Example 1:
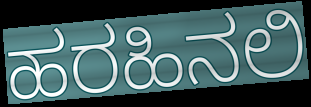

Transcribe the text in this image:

ಹರಹಿನಲಿ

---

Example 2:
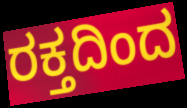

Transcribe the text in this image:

ರಕ್ತದಿಂದ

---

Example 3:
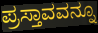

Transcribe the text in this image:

ಪ್ರಸ್ತಾವವನ್ನೂ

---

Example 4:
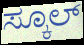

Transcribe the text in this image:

ಸ್ಕೂಲ್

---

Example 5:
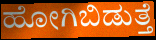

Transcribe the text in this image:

ಹೋಗಿಬಿಡುತ್ತೆ